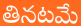
తినటమే